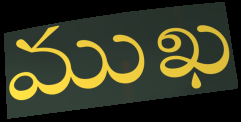
ముఖ